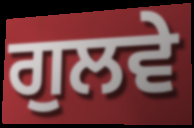
ਗੁਲਵੇ